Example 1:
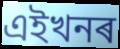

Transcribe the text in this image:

এইখনৰ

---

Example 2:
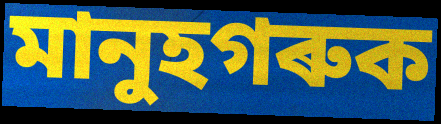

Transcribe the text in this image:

মানুহগৰুক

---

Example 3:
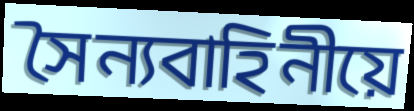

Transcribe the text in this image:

সৈন্যবাহিনীয়ে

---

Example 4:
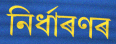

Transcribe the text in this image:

নিৰ্ধাৰণৰ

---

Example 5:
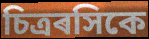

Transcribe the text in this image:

চিত্ৰৰসিকে